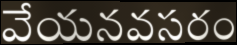
వేయనవసరం